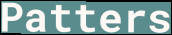
Patters